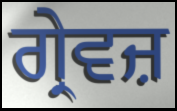
ਗ੍ਰੇਵਜ਼